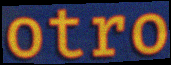
otro